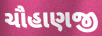
ચૌહાણજી